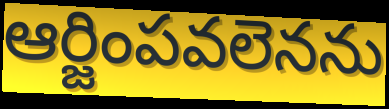
ఆర్జింపవలెనను